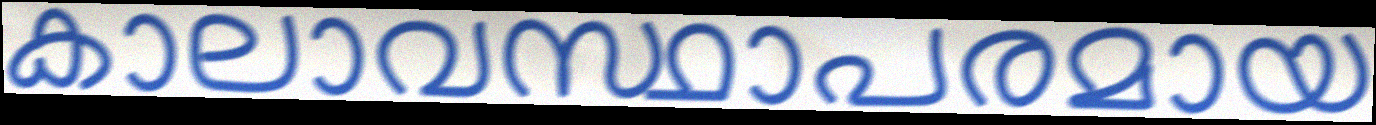
കാലാവസ്ഥാപരമായ